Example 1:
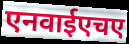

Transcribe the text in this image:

एनवाईएचए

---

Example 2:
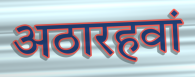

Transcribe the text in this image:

अठारहवां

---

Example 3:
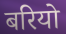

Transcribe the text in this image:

बरियो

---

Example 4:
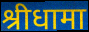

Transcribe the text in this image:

श्रीधामा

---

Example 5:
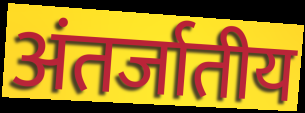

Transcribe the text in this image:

अंतर्जातीय